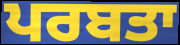
ਪਰਬਤਾ